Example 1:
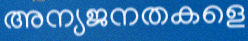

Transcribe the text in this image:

അന്യജനതകളെ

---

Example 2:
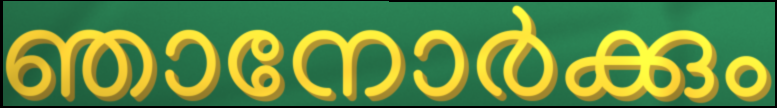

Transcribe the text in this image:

ഞാനോർക്കും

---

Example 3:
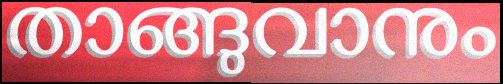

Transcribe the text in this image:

താങ്ങുവാനും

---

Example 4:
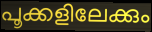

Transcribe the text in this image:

പൂക്കളിലേക്കും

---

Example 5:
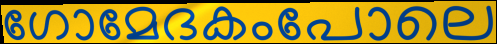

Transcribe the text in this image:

ഗോമേദകംപോലെ